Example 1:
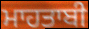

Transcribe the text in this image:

ਮਾਹਤਾਬੀ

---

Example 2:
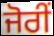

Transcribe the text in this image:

ਜੋਰੀਂ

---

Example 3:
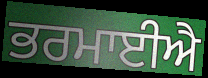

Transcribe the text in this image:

ਭਰਮਾਈਐ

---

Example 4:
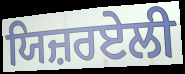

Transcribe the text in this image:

ਯਿਜ਼ਰਏਲੀ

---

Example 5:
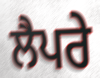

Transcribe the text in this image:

ਲੈਪਰੇ